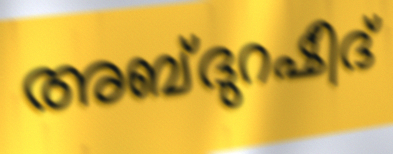
അബ്ദുറഷീദ്